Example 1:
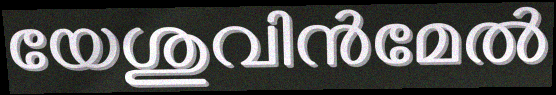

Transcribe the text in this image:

യേശുവിൻമേൽ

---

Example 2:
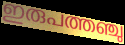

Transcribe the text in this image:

ഇരുപത്തഞ്ചു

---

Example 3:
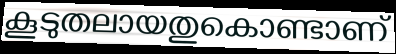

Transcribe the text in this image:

കൂടുതലായതുകൊണ്ടാണ്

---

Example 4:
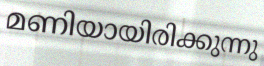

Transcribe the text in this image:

മണിയായിരിക്കുന്നു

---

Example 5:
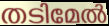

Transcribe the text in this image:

തടിമേൽ